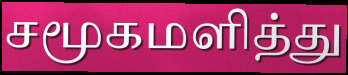
சமூகமளித்து